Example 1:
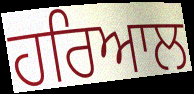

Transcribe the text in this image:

ਹਰਿਆਲ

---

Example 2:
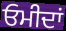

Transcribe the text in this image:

ਓਮੀਦਾਂ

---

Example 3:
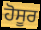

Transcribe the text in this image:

ਹੋਸੂਰ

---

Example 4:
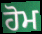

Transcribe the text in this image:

ਹੋਮ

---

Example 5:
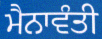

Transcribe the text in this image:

ਮੈਨਾਵੰਤੀ